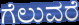
ಗೆಲುವರೆ